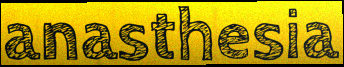
anasthesia